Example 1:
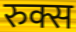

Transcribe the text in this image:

रुक्स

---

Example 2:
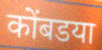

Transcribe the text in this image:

कोंबडया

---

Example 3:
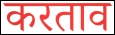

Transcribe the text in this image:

करताव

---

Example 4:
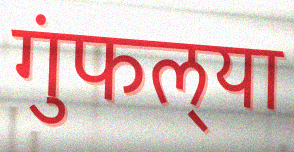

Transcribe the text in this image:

गुंफल्या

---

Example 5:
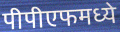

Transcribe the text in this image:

पीपीएफमध्ये